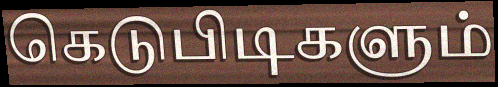
கெடுபிடிகளும்